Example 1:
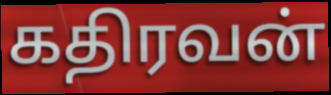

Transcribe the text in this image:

கதிரவன்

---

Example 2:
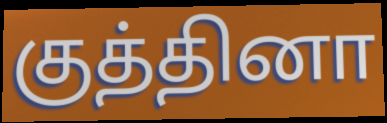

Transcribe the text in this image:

குத்தினா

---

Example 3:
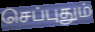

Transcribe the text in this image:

செப்புதும்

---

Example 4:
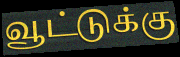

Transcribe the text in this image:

வூட்டுக்கு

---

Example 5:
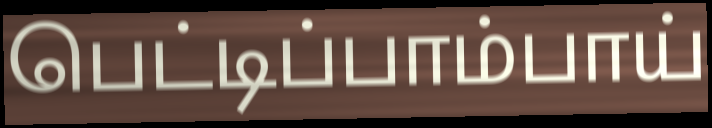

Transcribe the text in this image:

பெட்டிப்பாம்பாய்